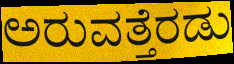
ಅರುವತ್ತೆರಡು